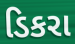
ડિકરા